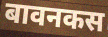
बावनकस